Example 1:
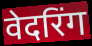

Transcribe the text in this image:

वेदरिंग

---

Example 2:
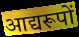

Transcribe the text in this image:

आद्यरूपों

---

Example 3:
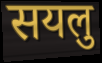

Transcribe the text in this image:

सयलु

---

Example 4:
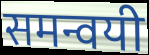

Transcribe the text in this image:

समन्वयी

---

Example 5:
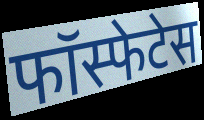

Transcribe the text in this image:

फॉस्फेटेस